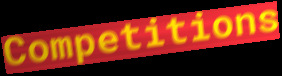
Competitions